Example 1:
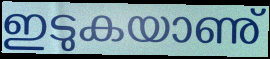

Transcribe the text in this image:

ഇടുകയാണു്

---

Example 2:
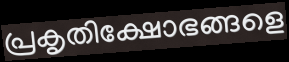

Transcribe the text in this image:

പ്രകൃതിക്ഷോഭങ്ങളെ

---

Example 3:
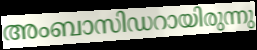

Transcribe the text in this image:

അംബാസിഡറായിരുന്നു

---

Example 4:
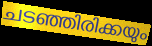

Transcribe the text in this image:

ചടഞ്ഞിരിക്കയും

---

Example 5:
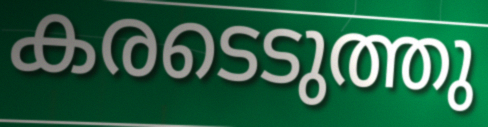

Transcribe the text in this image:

കരടെടുത്തു